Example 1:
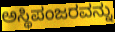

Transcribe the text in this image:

ಅಸ್ಥಿಪಂಜರವನ್ನು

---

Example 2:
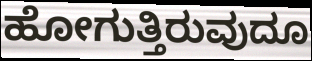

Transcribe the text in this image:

ಹೋಗುತ್ತಿರುವುದೂ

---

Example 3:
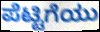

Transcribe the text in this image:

ಪೆಟ್ಟಿಗೆಯು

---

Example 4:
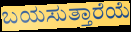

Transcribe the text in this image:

ಬಯಸುತ್ತಾರೆಯೆ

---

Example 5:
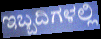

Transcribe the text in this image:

ಇಬ್ಬದಿಗಳಲ್ಲಿ